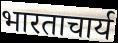
भारताचार्य